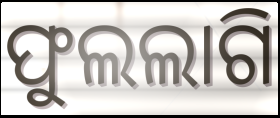
ଫୁଲଲାଗି